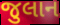
જુલાન